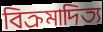
বিক্রমাদিত্য